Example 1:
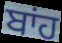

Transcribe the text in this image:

ਬਾਂਹ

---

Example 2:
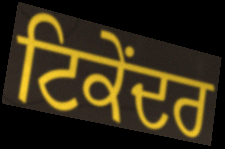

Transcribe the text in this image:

ਟਿਕੇਂਦਰ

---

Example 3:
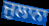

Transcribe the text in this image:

ਜੁਲਾਨਾ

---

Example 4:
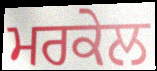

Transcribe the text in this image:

ਮਰਕੇਲ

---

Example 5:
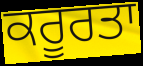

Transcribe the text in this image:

ਕਰੂਰਤਾ